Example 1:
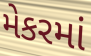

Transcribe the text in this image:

મેકરમાં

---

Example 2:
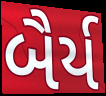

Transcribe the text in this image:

બૈર્ય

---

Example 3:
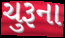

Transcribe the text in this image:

ચુરૂના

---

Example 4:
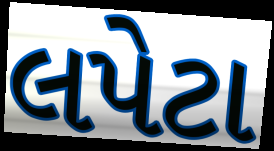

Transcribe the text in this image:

લપેટા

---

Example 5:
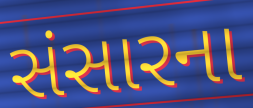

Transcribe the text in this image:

સંસારના